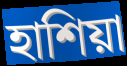
হাশিয়া